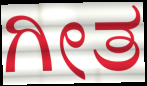
ಗೀತ